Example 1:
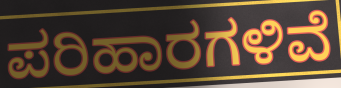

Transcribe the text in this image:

ಪರಿಹಾರಗಳಿವೆ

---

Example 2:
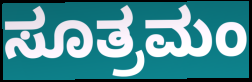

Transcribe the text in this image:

ಸೂತ್ರಮಂ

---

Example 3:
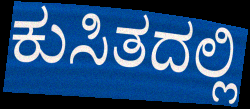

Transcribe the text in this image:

ಕುಸಿತದಲ್ಲಿ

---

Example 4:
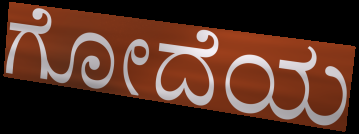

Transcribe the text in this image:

ಗೋದೆಯ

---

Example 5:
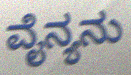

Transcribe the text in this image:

ವೈನ್ಯನು